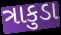
ત્રાકુડા